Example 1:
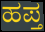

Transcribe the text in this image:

ಹಪ್ತ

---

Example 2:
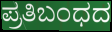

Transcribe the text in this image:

ಪ್ರತಿಬಂಧದ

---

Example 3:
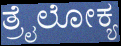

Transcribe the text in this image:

ತ್ರೈಲೋಕ್ಯ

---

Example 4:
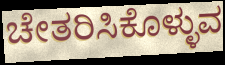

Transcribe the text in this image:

ಚೇತರಿಸಿಕೊಳ್ಳುವ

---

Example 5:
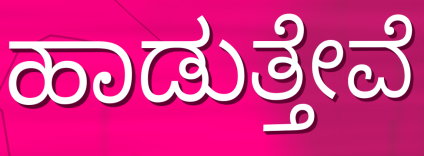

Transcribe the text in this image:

ಹಾಡುತ್ತೇವೆ